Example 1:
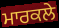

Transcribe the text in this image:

ਮਾਰਕਲੇ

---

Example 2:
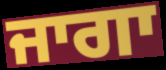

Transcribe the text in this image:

ਜਾਗਾ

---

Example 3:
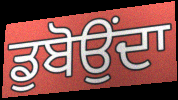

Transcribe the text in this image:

ਡੁਬੋਉਂਦਾ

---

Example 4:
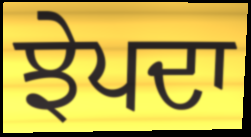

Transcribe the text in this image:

ਝੇਪਦਾ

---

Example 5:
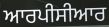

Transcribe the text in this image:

ਆਰਪੀਸੀਆਰ